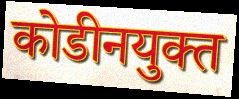
कोडीनयुक्त